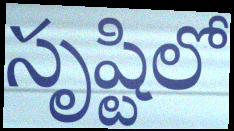
సృష్టిలో